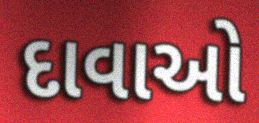
દાવાઓ